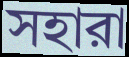
সহারা